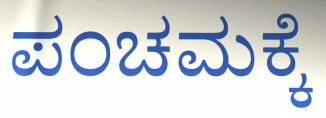
ಪಂಚಮಕ್ಕೆ